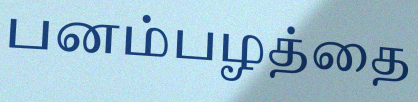
பனம்பழத்தை